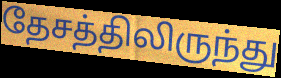
தேசத்திலிருந்து